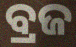
ବ୍ରଜ